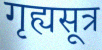
गृह्यसूत्र